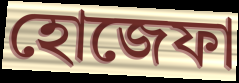
হোজেফা